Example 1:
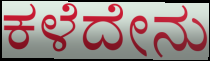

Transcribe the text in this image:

ಕಳೆದೇನು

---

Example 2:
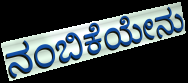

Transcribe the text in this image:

ನಂಬಿಕೆಯೇನು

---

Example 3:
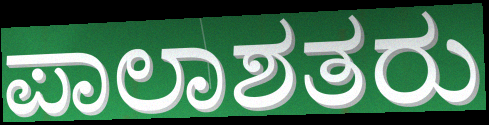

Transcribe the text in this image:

ಪಾಲಾಶತರು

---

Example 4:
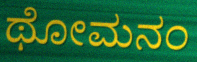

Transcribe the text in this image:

ಥೋಮನಂ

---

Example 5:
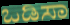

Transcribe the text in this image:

ಒಡಿಸಾ